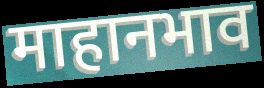
माहानभाव